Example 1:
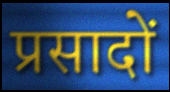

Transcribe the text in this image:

प्रसादों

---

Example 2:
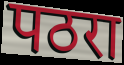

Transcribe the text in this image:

पठरा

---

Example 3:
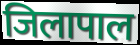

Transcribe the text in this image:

जिलापाल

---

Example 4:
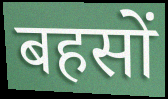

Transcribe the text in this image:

बहसों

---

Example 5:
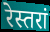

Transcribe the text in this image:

रेस्तरां